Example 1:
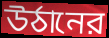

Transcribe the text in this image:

উঠানের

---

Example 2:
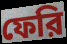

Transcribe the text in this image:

ফেরি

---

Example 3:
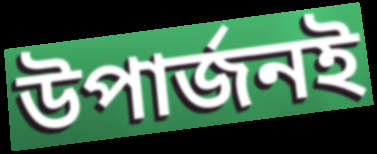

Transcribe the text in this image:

উপার্জনই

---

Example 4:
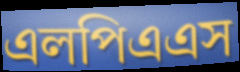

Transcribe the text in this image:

এলপিএএস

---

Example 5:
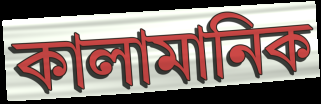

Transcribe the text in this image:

কালামানিক